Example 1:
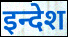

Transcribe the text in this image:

इन्देश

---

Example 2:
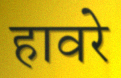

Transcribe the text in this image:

हावरे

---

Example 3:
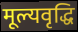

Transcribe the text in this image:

मूल्यवृद्धि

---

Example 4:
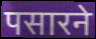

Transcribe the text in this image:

पसारने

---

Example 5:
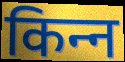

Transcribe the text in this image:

किन्न